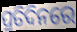
ପ୍ରତିଦିନରେ